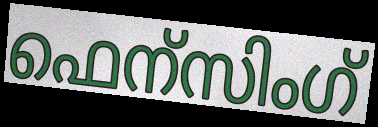
ഫെന്സിംഗ്